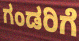
ಗಂಡರಿಗೆ